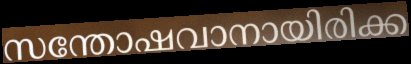
സന്തോഷവാനായിരിക്ക